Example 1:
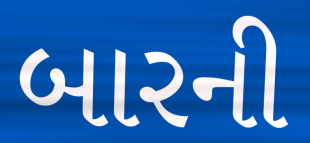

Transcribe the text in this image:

બારની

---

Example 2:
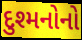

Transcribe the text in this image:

દુશ્મનોનો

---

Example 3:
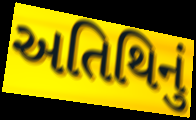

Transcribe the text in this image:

અતિથિનું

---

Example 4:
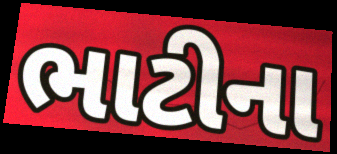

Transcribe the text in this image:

ભાટીના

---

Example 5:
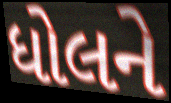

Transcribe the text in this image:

ધોલને